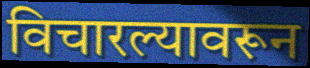
विचारल्यावरून